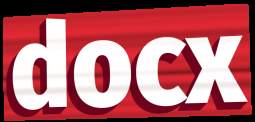
docx